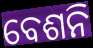
ବେଶନି